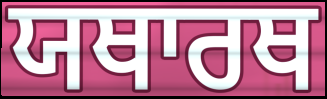
ਯਥਾਰਥ